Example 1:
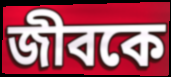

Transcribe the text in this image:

জীবকে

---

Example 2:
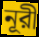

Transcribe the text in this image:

নূরী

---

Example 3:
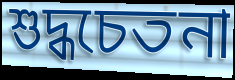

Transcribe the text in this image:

শুদ্ধচেতনা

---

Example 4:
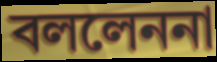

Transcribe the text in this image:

বললেননা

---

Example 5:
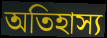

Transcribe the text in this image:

অতিহাস্য